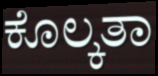
ಕೊಲ್ಕತಾ